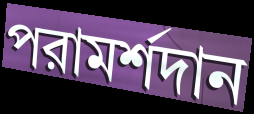
পরামর্শদান